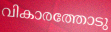
വികാരത്തോടു